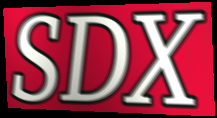
SDX